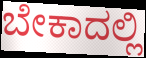
ಬೇಕಾದಲ್ಲಿ